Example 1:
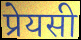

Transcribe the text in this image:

प्रेयसी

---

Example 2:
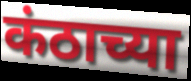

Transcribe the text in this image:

कंठाच्या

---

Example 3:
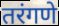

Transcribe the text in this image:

तरंगणे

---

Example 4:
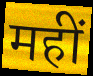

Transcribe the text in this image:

महीं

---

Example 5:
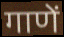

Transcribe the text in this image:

गाणें